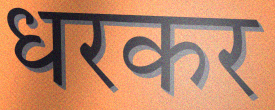
धरकर